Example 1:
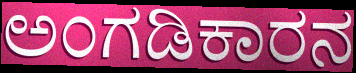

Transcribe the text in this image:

ಅಂಗಡಿಕಾರನ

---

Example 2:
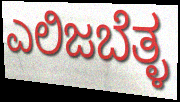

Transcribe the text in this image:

ಎಲಿಜಬೆತ್ಳ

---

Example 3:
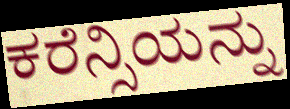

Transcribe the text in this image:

ಕರೆನ್ಸಿಯನ್ನು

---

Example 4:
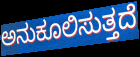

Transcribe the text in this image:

ಅನುಕೂಲಿಸುತ್ತದೆ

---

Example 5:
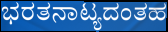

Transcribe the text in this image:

ಭರತನಾಟ್ಯದಂತಹ